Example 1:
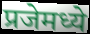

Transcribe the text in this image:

प्रजेमध्ये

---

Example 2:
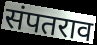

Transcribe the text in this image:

संपतराव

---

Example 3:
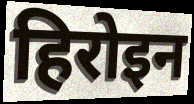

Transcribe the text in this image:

हिरोइन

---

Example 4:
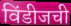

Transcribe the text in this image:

विंडीजची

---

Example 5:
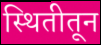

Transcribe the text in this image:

स्थितीतून